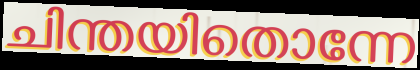
ചിന്തയിതൊന്നേ